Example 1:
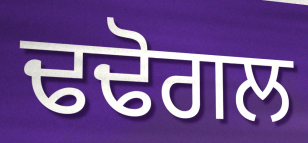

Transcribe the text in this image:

ਢਢੋਗਲ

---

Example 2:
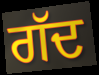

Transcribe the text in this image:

ਗੱਦ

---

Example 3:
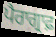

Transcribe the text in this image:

ਪੈਰਾਗ੍ਰਾਫ਼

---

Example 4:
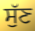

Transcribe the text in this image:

ਸੁੱਣ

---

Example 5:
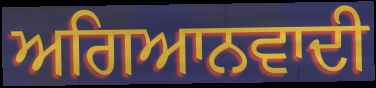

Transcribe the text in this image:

ਅਗਿਆਨਵਾਦੀ